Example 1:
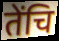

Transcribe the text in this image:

तेंचि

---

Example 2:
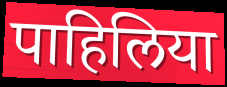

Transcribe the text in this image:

पाहिलिया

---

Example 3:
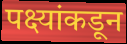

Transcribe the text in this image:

पक्ष्यांकडून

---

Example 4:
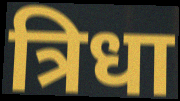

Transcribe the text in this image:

त्रिधा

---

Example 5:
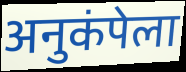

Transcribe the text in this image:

अनुकंपेला